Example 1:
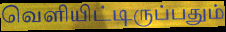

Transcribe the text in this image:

வெளியிட்டிருப்பதும்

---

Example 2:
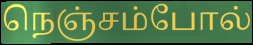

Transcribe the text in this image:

நெஞ்சம்போல்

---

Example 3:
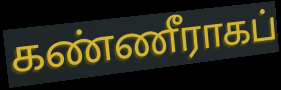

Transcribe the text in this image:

கண்ணீராகப்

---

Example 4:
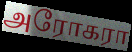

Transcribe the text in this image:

அரோகரா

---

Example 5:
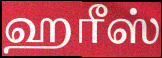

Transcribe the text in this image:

ஹரீஸ்